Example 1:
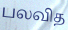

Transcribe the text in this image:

பலவித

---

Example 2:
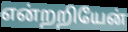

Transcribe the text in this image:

என்றறியேன்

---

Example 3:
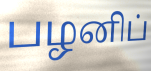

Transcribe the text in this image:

பழனிப்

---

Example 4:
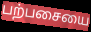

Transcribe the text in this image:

பற்பசையை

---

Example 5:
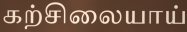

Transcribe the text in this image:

கற்சிலையாய்